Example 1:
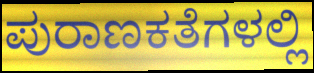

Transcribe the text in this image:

ಪುರಾಣಕತೆಗಳಲ್ಲಿ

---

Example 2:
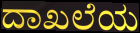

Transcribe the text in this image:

ದಾಖಲೆಯ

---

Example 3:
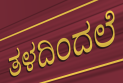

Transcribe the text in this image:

ತಳದಿಂದಲೆ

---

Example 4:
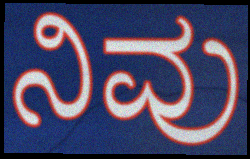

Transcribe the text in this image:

ನಿವು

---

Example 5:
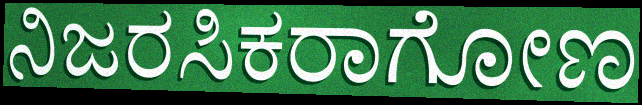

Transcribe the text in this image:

ನಿಜರಸಿಕರಾಗೋಣ